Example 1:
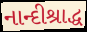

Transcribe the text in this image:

નાન્દીશ્રાદ્ધ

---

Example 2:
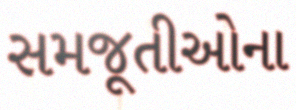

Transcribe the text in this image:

સમજૂતીઓના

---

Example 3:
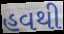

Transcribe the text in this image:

હવથી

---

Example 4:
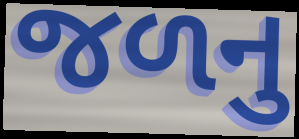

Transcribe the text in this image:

જળનુ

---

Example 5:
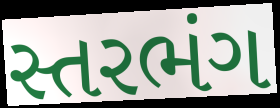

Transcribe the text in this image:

સ્તરભંગ